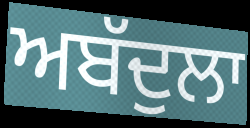
ਅਬੱਦੁਲਾ